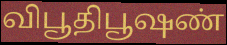
விபூதிபூஷண்